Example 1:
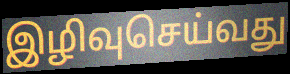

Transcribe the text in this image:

இழிவுசெய்வது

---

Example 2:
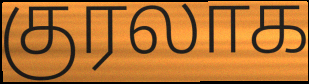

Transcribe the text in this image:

குரலாக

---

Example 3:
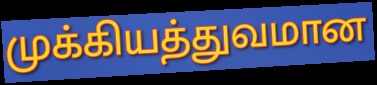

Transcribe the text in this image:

முக்கியத்துவமான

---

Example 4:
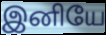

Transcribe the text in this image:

இனியே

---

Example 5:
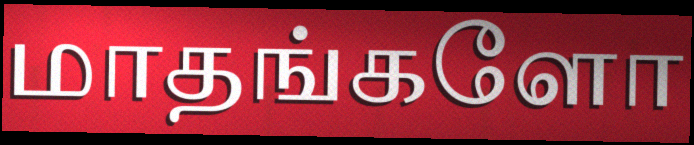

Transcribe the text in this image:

மாதங்களோ